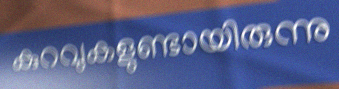
കുറവുകളുണ്ടായിരുന്നു